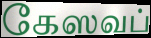
கேஸவப்